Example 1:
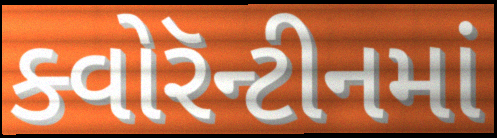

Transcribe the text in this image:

ક્વોરૅન્ટીનમાં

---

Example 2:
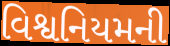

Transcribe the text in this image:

વિશ્વનિયમની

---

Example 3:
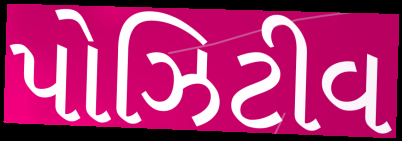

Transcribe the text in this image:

પોઝિટીવ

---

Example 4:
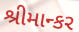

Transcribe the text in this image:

શ્રીમાન્કર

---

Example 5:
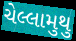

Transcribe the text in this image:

ચેલ્લામુથુ